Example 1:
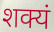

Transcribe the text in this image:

शक्यं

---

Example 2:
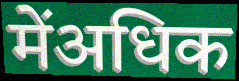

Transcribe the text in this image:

मेंअधिक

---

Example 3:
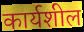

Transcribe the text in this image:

कार्यशील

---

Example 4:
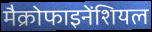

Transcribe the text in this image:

मैक्रोफाइनेंशियल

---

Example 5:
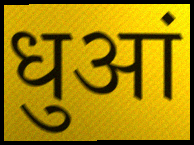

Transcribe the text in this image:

धुआं